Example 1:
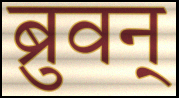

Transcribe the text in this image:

ब्रुवन्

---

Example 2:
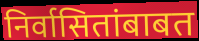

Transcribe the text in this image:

निर्वासितांबाबत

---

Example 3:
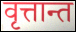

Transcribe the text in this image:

वृत्तान्त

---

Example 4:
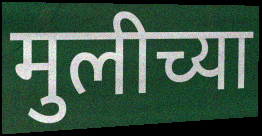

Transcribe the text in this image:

मुलीच्या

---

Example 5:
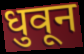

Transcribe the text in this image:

धुवून